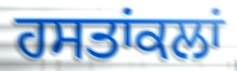
ਹਸਤਾਂਕਲਾਂ